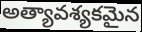
అత్యావశ్యకమైన